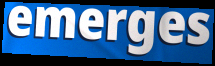
emerges